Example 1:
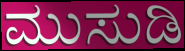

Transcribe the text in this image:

ಮುಸುಡಿ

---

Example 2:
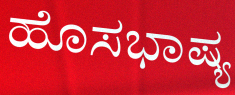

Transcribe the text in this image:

ಹೊಸಭಾಷ್ಯ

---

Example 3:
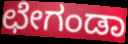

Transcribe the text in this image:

ಛೇಗಂಡಾ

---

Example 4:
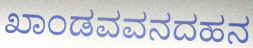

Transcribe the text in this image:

ಖಾಂಡವವನದಹನ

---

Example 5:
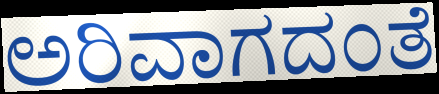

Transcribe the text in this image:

ಅರಿವಾಗದಂತೆ